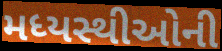
મધ્યસ્થીઓની